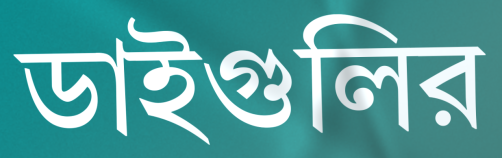
ডাইগুলির